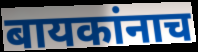
बायकांनाच